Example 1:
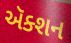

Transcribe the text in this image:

ઍક્શન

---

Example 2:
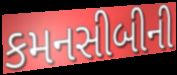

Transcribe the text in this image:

કમનસીબીની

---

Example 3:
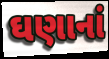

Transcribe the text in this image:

ઘણાનાં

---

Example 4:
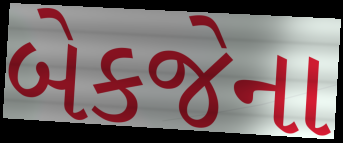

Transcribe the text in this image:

બેકજેના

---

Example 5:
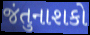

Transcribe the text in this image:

જંતુનાશકો